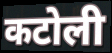
कटोली